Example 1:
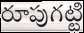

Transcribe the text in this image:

రూపుగట్టి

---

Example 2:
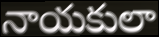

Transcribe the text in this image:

నాయకులా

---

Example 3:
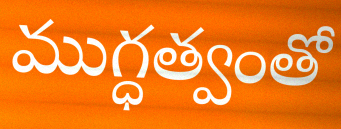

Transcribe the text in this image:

ముగ్ధత్వంతో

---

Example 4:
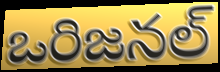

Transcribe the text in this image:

ఒరిజనల్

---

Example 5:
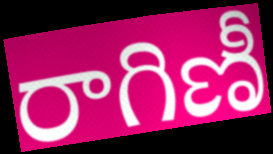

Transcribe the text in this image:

రాగిణీ